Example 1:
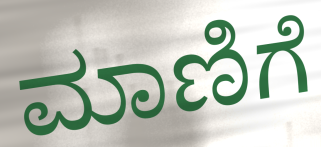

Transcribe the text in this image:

ಮಾಣಿಗೆ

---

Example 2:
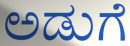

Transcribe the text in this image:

ಅಡುಗೆ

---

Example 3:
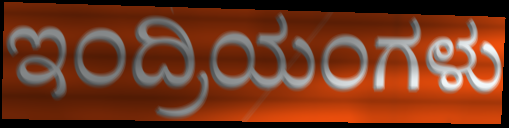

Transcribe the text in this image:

ಇಂದ್ರಿಯಂಗಳು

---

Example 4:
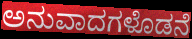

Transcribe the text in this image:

ಅನುವಾದಗಳೊಡನೆ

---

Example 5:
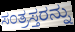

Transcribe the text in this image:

ಸಂತ್ರಸ್ತರನ್ನು